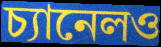
চ্যানেলও